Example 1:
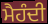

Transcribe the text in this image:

ਮੈਹੰਦੀ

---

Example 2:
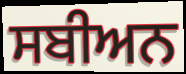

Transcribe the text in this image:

ਸਬੀਅਨ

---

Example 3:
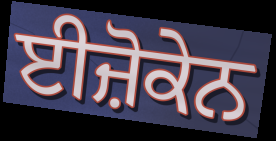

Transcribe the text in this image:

ਈਜ਼ੋਕੇਨ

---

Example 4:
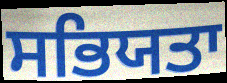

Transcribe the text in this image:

ਸਭਿਯਤਾ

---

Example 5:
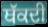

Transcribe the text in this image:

ਥੱਕਦੀ